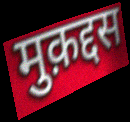
मुक़द्दस